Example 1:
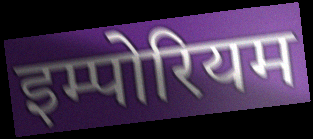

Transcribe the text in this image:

इम्पोरियम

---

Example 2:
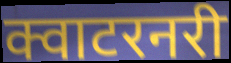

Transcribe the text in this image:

क्वाटरनरी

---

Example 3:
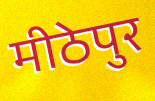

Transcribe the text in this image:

मीठेपुर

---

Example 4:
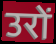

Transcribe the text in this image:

उरों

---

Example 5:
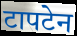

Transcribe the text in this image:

टापटेन